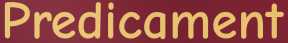
Predicament